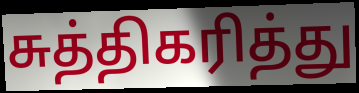
சுத்திகரித்து